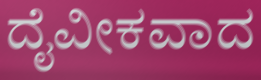
ದೈವೀಕವಾದ